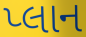
પ્લાન